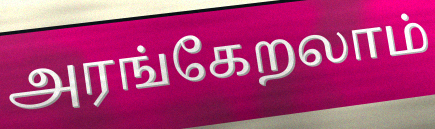
அரங்கேறலாம்